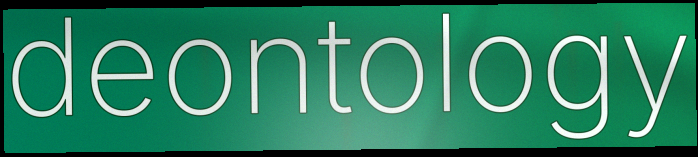
deontology